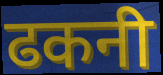
ढकनी